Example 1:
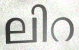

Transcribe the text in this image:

ലിറ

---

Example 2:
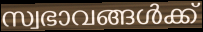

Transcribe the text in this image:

സ്വഭാവങ്ങൾക്ക്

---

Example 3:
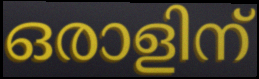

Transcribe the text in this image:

ഒരാളിന്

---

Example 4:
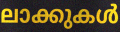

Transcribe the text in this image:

ലാക്കുകൾ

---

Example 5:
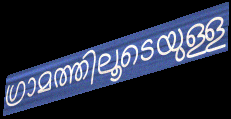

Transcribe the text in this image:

ഗ്രാമത്തിലൂടെയുള്ള